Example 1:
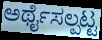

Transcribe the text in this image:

ಅರ್ಥೈಸಲ್ಪಟ್ಟ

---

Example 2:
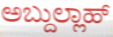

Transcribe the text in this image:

ಅಬ್ದುಲ್ಲಾಹ್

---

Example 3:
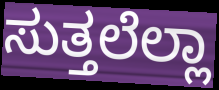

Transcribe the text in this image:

ಸುತ್ತಲೆಲ್ಲಾ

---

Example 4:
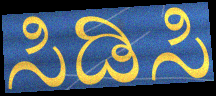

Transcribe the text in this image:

ಸಿಡಿಸಿ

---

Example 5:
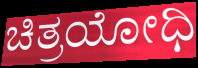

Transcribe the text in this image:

ಚಿತ್ರಯೋಧಿ